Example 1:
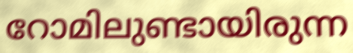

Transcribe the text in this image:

റോമിലുണ്ടായിരുന്ന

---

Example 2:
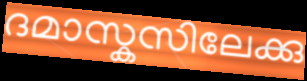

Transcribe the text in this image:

ദമാസ്കസിലേക്കു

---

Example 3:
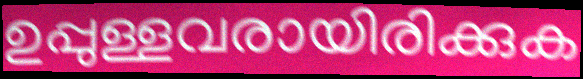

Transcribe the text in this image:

ഉപ്പുള്ളവരായിരിക്കുക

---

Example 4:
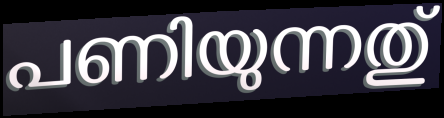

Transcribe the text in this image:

പണിയുന്നതു്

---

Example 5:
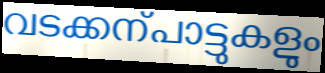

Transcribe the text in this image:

വടക്കന്പാട്ടുകളും